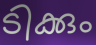
ടിക്കും